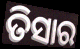
ତିସାର